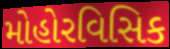
મોહોરવિસિક